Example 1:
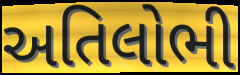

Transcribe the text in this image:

અતિલોભી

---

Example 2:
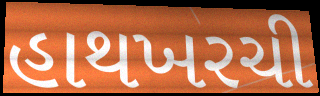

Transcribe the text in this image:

હાથખરચી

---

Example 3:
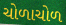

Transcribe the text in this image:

ચોળાચોળ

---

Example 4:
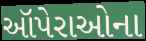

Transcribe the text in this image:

ઑપેરાઓના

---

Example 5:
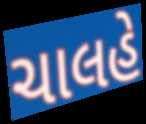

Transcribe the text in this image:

ચાલહે